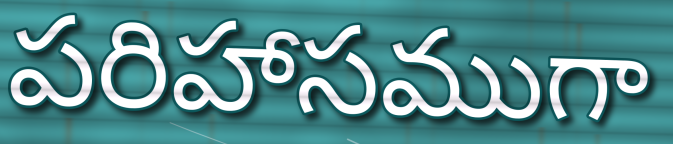
పరిహాసముగా